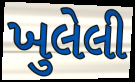
ખુલેલી